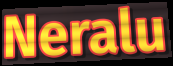
Neralu